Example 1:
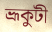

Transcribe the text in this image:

ভ্রূকুটী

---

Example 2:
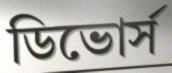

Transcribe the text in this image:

ডিভোর্স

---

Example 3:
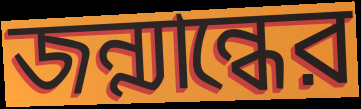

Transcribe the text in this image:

জন্মান্ধের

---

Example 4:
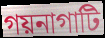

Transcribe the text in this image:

গয়নাগাটি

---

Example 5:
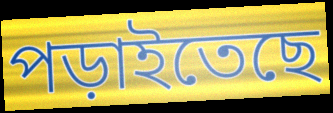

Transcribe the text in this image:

পড়াইতেছে